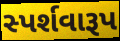
સ્પર્શવારૂપ